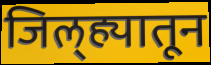
जिल्ह्यातून